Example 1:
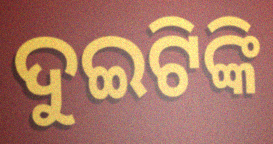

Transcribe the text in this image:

ଦୁଇଟିଙ୍କି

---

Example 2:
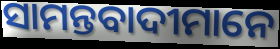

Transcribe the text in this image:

ସାମନ୍ତବାଦୀମାନେ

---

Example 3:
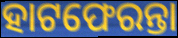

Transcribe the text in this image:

ହାଟଫେରନ୍ତା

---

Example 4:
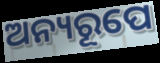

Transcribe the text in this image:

ଅନ୍ୟରୂପେ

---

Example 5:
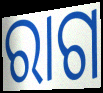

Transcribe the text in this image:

ରାଗ